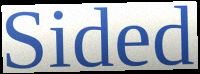
Sided